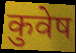
कुवेष